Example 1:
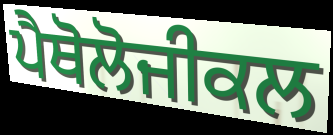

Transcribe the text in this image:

ਪੈਥੋਲੋਜੀਕਲ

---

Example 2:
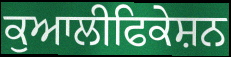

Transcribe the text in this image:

ਕੁਆਲੀਫਿਕੇਸ਼ਨ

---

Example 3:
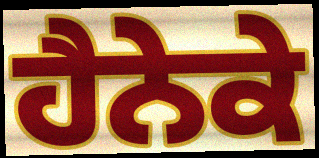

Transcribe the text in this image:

ਹੈਨੇਕੇ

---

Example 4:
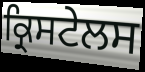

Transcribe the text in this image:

ਕ੍ਰਿਸਟੇਲਸ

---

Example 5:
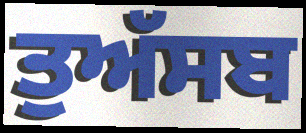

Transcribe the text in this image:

ਤੁਅੱਸਬ